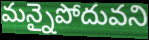
మన్నైపోదువని